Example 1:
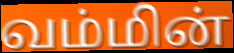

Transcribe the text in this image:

வம்மின்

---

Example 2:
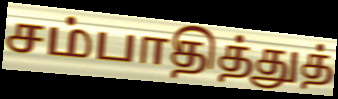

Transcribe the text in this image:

சம்பாதித்துத்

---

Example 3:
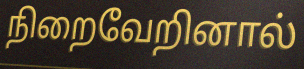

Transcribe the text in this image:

நிறைவேறினால்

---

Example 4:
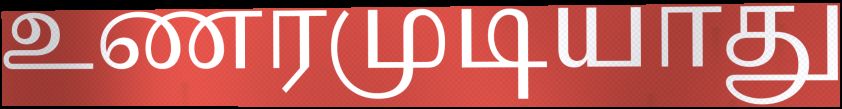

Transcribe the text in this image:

உணரமுடியாது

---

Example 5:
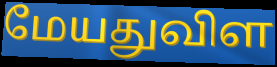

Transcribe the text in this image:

மேயதுவிள